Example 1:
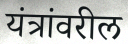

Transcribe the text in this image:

यंत्रांवरील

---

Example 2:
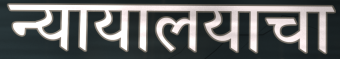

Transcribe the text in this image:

न्यायालयाचा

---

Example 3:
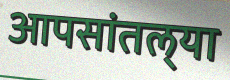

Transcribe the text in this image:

आपसांतल्या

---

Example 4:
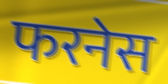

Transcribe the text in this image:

फरनेस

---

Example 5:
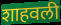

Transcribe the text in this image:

शाहवली